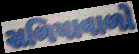
સળિયાવાળો